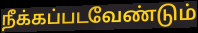
நீக்கப்படவேண்டும்